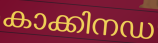
കാക്കിനഡ